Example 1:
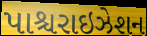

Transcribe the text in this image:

પાશ્ચરાઇઝેશન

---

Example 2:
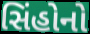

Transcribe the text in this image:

સિંહોનો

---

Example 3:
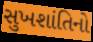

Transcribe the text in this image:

સુખશાંતિનો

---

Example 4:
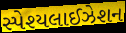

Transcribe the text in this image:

સ્પેશ્યલાઈઝેશન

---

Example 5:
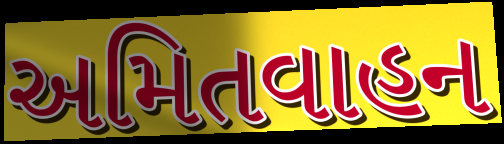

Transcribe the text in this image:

અમિતવાહન